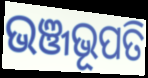
ଭଞ୍ଜଭୂପତି